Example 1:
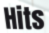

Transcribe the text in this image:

Hits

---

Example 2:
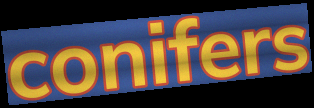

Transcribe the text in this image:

conifers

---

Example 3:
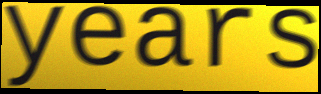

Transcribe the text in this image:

years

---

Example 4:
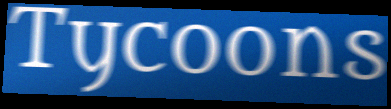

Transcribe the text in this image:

Tycoons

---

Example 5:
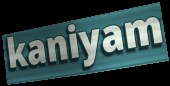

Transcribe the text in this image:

kaniyam